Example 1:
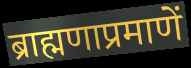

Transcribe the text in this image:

ब्राह्मणाप्रमाणें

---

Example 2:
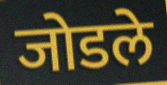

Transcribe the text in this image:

जोडले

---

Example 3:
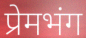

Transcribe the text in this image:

प्रेमभंग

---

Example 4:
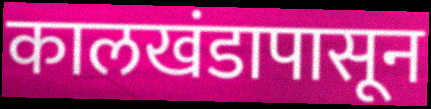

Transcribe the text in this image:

कालखंडापासून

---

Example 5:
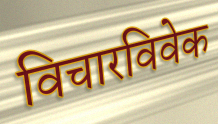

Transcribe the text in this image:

विचारविवेक